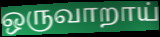
ஒருவாறாய்